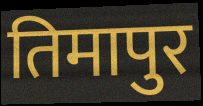
तिमापुर